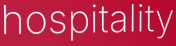
hospitality